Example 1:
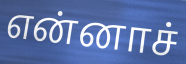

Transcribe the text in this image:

என்னாச்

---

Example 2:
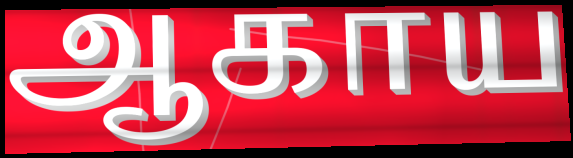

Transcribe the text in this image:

ஆகாய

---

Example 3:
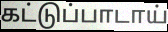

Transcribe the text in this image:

கட்டுப்பாடாய்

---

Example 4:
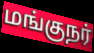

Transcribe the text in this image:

மங்குநர்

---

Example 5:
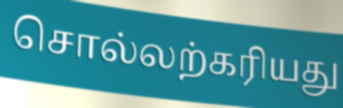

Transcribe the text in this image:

சொல்லற்கரியது